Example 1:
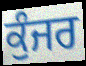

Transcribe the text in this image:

ਕੁੰਜਰ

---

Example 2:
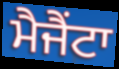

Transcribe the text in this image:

ਮੈਜੈਂਟਾ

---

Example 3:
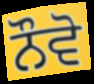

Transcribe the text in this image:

ਨੌਵੋ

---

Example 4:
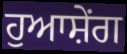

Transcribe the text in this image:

ਹੁਆਸ਼ੇਂਗ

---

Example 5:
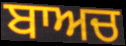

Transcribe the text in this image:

ਬਾਅਚ